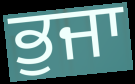
ਭੁਜਾ